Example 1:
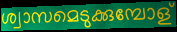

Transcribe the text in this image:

ശ്വാസമെടുക്കുമ്പോള്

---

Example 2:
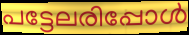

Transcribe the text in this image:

പട്ടേലരിപ്പോൾ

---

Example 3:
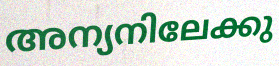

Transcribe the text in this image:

അന്യനിലേക്കു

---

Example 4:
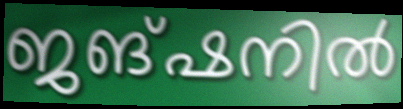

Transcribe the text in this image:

ജങ്ഷനിൽ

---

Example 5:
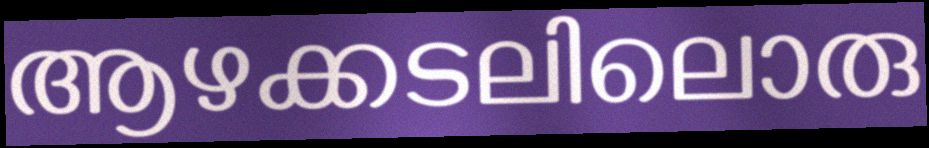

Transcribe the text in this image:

ആഴക്കടലിലൊരു